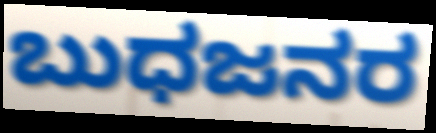
ಬುಧಜನರ